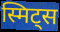
स्मिट्स